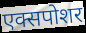
एक्सपोशर